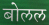
बोलल